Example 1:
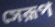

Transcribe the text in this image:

সেরূপ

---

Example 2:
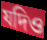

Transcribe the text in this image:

যদিও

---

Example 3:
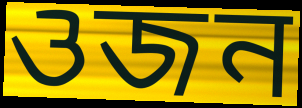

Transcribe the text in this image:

ওজন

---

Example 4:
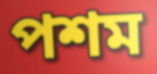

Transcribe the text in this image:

পশম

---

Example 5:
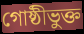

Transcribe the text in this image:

গোষ্ঠীভুক্ত